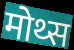
मोथ्स